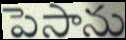
పెసాను